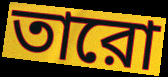
তারো